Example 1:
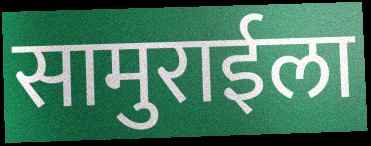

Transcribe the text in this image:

सामुराईला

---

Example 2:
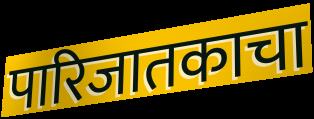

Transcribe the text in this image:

पारिजातकाचा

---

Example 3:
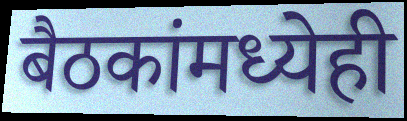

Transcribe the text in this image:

बैठकांमध्येही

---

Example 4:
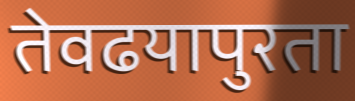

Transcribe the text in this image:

तेवढयापुरता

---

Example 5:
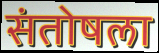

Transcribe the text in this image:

संतोषला